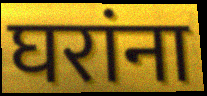
घरांना